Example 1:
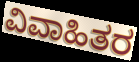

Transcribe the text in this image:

ವಿವಾಹಿತರ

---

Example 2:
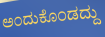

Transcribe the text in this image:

ಅಂದುಕೊಂಡದ್ದು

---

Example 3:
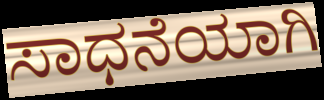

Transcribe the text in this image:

ಸಾಧನೆಯಾಗಿ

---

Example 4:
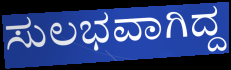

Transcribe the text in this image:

ಸುಲಭವಾಗಿದ್ದ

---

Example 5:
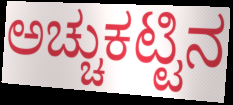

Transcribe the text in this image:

ಅಚ್ಚುಕಟ್ಟಿನ